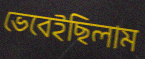
ভেবেইছিলাম